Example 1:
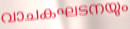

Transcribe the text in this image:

വാചകഘടനയും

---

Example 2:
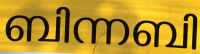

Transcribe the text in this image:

ബിന്നബി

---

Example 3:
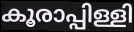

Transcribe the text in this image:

കൂരാപ്പിള്ളി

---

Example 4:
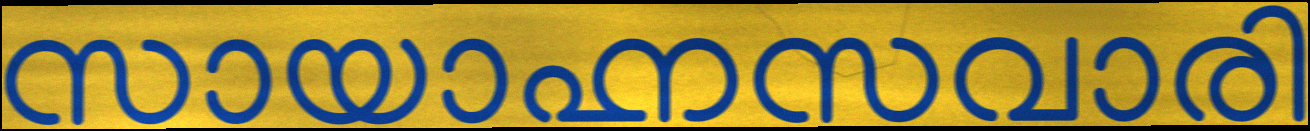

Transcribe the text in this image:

സായാഹ്നസവാരി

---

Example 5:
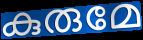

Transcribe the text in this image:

കുരുമേ